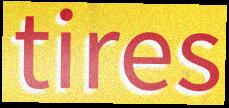
tires